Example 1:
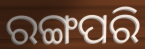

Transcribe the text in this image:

ରଙ୍ଗପରି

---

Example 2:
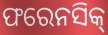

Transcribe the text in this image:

ଫରେନସିକ୍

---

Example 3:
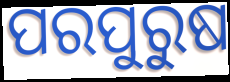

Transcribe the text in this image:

ପରପୁରୁଷ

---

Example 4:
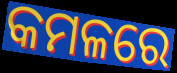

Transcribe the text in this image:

କମଳରେ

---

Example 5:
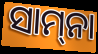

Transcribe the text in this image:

ସାମ୍‌ନା